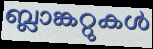
ബ്ലാങ്കറ്റുകൾ